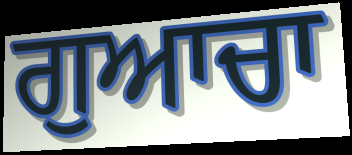
ਗੁਆਚਾ